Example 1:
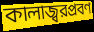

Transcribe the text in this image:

কালাজ্বরপ্রবণ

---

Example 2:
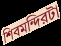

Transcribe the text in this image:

শিবমন্দিরটা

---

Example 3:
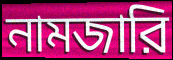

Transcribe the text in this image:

নামজারি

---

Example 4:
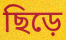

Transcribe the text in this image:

ছিড়ে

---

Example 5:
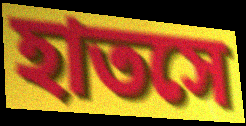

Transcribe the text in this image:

হাতসে